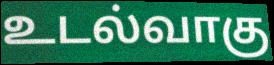
உடல்வாகு